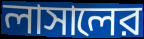
লাসালের